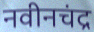
नवीनचंद्र